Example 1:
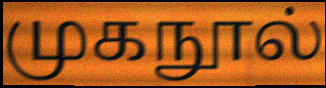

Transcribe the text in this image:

முகநூல்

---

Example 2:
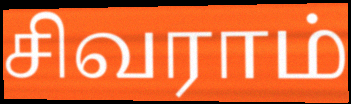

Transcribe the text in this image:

சிவராம்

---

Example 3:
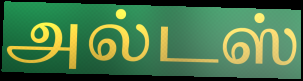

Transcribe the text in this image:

அல்டஸ்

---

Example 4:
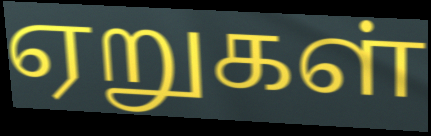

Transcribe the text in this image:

ஏறுகள்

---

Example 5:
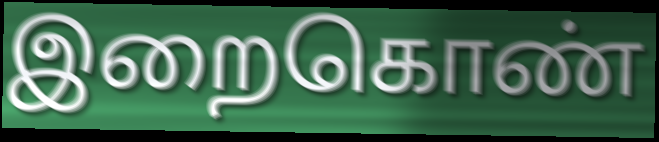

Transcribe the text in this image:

இறைகொண்